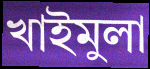
খাইমুলা